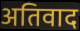
अतिवाद